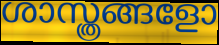
ശാസ്ത്രങ്ങളോ